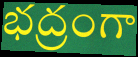
భద్రంగా